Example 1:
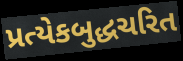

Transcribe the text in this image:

પ્રત્યેકબુદ્ધચરિત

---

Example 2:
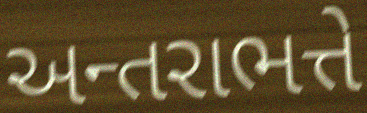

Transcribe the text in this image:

અન્તરાભત્તે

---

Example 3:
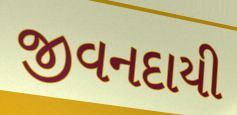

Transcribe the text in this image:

જીવનદાયી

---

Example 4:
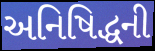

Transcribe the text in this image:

અનિષિદ્ધની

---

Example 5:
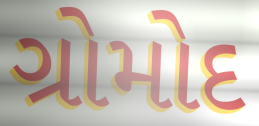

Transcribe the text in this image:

ગ્રોમોદ